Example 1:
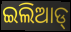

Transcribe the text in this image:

ଇଲିଆଡ୍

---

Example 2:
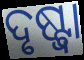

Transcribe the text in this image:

ଦୃଷ୍ଟ୍ବା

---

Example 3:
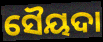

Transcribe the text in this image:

ସୈୟଦା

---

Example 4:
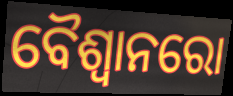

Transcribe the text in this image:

ବୈଶ୍ୱାନରୋ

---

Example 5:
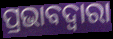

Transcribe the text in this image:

ପ୍ରଭାବଦ୍ୱାରା